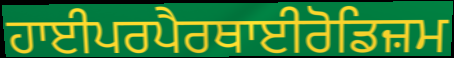
ਹਾਈਪਰਪੈਰਥਾਈਰੋਡਿਜ਼ਮ